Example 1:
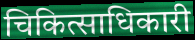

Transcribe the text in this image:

चिकित्साधिकारी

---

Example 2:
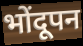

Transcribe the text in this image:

भोंदूपन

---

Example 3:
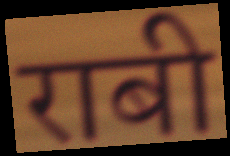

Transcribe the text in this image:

राबी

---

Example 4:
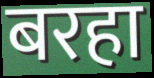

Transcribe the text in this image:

बरहा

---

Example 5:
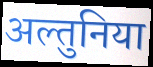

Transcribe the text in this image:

अल्तुनिया